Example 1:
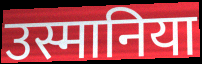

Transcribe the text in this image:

उस्मानिया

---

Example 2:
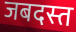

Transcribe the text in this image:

जबदस्त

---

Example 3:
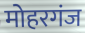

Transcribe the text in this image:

मोहरगंज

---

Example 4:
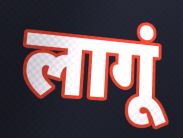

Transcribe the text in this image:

लागूं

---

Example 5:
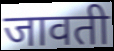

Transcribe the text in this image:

जावती